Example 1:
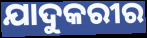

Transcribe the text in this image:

ଯାଦୁକରୀର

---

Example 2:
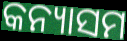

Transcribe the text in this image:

କନ୍ୟାସମ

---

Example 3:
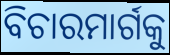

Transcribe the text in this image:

ବିଚାରମାର୍ଗକୁ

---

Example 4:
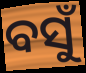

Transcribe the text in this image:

ବସୁଁ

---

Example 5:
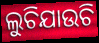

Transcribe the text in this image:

ଲୁଚିଯାଉଚି